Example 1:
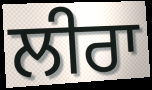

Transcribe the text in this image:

ਲੀਰਾ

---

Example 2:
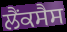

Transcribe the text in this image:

ਲੈਂਕਸੈਸ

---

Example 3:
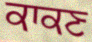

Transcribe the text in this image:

ਕਾਕਣ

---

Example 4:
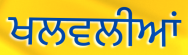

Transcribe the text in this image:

ਖਲਵਲੀਆਂ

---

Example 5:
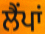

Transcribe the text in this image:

ਲੈਂਪਾਂ